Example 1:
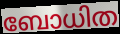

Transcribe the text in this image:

ബോധിത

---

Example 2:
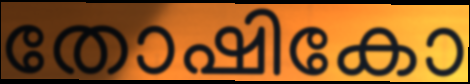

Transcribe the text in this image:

തോഷികോ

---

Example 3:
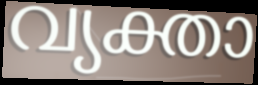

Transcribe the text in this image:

വ്യക്താ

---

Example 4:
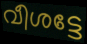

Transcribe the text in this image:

വീശട്ടേ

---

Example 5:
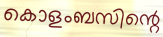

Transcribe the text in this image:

കൊളംബസിന്റെ